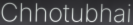
Chhotubhai